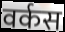
वर्कस